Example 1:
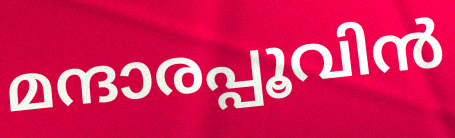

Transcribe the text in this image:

മന്ദാരപ്പൂവിൻ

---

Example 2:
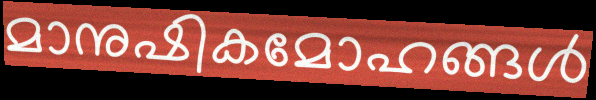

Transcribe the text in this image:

മാനുഷികമോഹങ്ങൾ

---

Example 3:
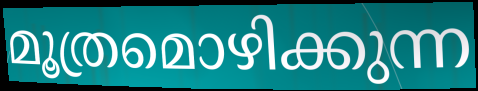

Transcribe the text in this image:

മൂത്രമൊഴിക്കുന്ന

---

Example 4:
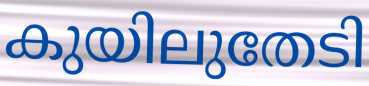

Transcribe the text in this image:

കുയിലുതേടി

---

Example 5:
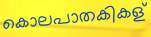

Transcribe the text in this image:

കൊലപാതകികള്